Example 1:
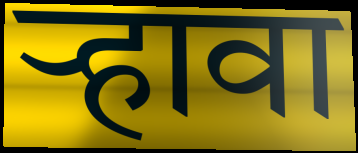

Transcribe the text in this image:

ऱ्हावा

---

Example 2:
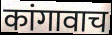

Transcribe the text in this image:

कांगावाच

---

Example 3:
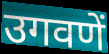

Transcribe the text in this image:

उगवणें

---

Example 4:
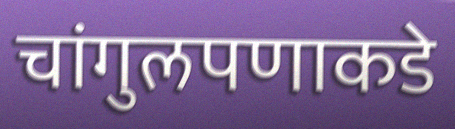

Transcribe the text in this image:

चांगुलपणाकडे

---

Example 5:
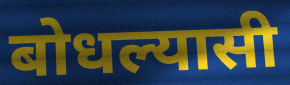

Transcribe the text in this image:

बोधल्यासी